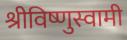
श्रीविष्णुस्वामी